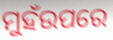
ମୁହଁଉପରେ